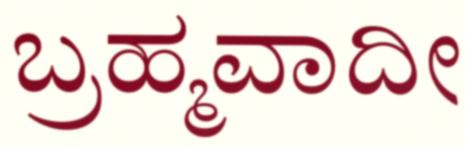
ಬ್ರಹ್ಮವಾದೀ